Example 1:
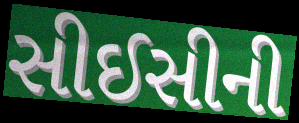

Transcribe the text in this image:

સીઈસીની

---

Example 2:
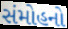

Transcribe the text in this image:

સંમોહનો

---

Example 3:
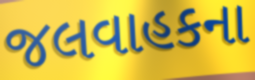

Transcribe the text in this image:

જલવાહકના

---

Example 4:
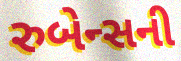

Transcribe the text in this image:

રુબેન્સની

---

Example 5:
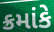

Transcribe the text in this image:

ક્રમાંકે